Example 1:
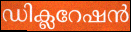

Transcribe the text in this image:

ഡിക്ലറേഷൻ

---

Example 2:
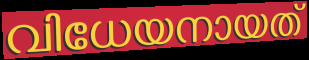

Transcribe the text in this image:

വിധേയനായത്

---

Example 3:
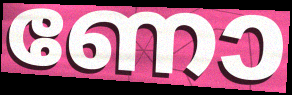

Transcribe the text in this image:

ണോ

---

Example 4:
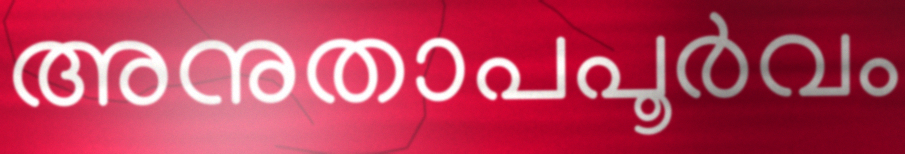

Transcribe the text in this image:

അനുതാപപൂർവം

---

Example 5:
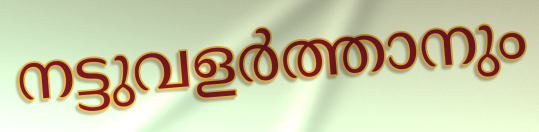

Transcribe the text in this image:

നട്ടുവളർത്താനും